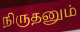
நிருதனும்